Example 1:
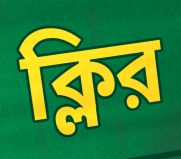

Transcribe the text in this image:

ক্লির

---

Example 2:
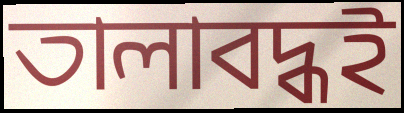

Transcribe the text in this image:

তালাবদ্ধই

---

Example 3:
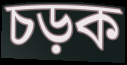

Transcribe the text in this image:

চড়ক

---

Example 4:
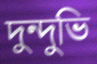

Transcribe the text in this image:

দুন্দুভি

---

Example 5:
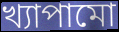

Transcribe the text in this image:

খ্যাপামো